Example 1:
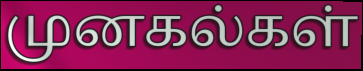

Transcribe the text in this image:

முனகல்கள்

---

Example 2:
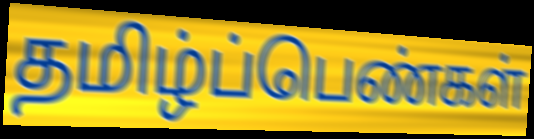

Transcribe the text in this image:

தமிழ்ப்பெண்கள்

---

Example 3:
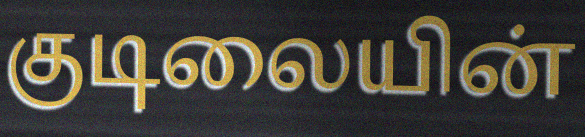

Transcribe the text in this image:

குடிலையின்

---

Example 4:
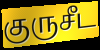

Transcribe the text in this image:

குருசீட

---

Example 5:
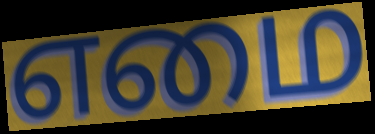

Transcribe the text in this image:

எமை